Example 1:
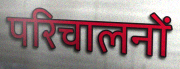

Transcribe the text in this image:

परिचालनों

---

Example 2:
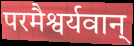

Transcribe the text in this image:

परमैश्वर्यवान्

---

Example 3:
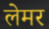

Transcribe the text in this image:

लेमर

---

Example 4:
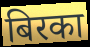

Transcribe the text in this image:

बिरका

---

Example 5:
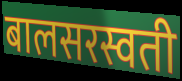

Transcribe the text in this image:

बालसरस्वती